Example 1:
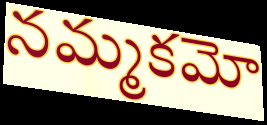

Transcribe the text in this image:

నమ్మకమో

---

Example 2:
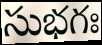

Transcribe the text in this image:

సుభగః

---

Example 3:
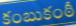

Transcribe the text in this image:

కంబుకంఠీ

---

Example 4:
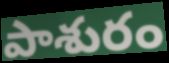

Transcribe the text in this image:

పాశురం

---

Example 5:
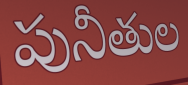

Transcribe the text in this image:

పునీతుల